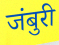
जंबुरी